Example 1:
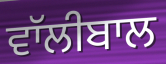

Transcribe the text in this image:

ਵਾੱਲੀਬਾਲ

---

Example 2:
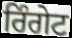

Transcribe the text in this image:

ਰਿੰਗੇਟ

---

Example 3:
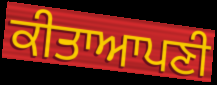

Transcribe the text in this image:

ਕੀਤਾਆਪਣੀ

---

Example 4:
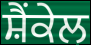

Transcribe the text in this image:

ਸ਼ੈਂਕੇਲ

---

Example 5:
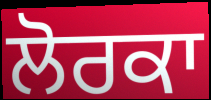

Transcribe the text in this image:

ਲੋਰਕਾ